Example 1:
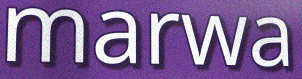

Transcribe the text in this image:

marwa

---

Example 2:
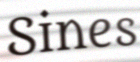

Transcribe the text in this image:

Sines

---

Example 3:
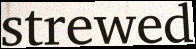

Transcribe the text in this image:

strewed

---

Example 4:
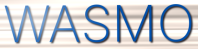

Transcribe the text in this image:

WASMO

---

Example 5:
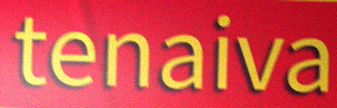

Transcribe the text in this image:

tenaiva